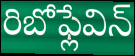
రిబోఫ్లేవిన్